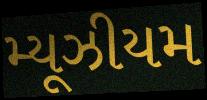
મ્યૂઝીયમ